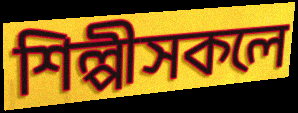
শিল্পীসকলে